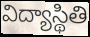
విద్యాస్థితి